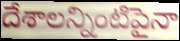
దేశాలన్నింటిపైనా